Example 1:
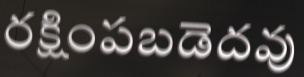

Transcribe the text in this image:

రక్షింపబడెదవు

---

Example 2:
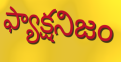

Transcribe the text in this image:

ఫ్యాక్షనిజం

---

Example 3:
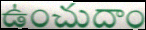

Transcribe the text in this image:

ఉంచుదాం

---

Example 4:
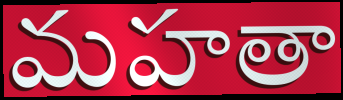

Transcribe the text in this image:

మహతా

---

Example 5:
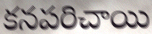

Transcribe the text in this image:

కనపరిచాయి